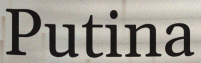
Putina